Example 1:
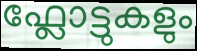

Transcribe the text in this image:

ഫ്ലോട്ടുകളും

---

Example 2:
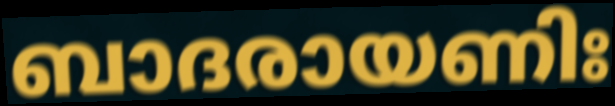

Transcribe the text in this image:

ബാദരായണിഃ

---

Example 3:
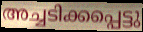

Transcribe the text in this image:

അച്ചടിക്കപ്പെട്ടു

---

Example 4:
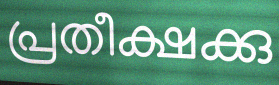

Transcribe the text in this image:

പ്രതീക്ഷക്കു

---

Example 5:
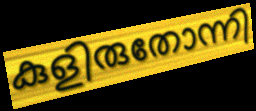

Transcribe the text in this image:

കുളിരുതോന്നി